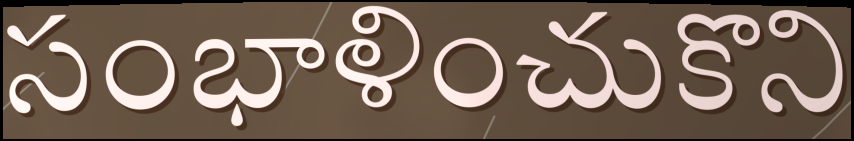
సంభాళించుకొని